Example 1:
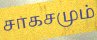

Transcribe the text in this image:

சாகசமும்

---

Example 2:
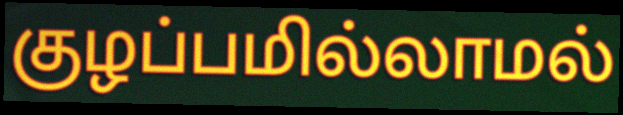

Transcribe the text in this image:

குழப்பமில்லாமல்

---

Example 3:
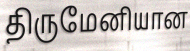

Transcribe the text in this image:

திருமேனியான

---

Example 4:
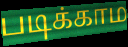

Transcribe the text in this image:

படிக்காம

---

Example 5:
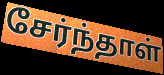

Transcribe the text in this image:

சேர்ந்தாள்